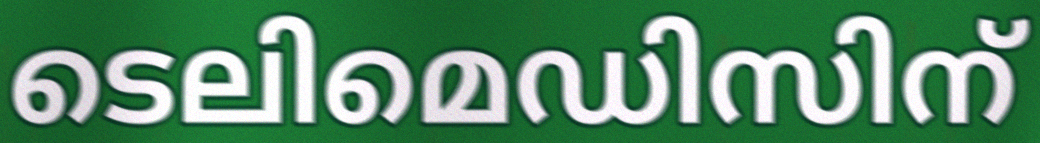
ടെലിമെഡിസിന്